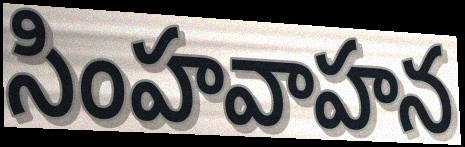
సింహవాహన